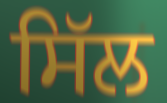
ਸਿੱਲ